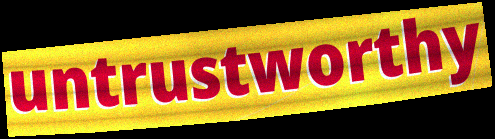
untrustworthy